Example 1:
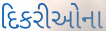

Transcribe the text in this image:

દિકરીઓના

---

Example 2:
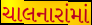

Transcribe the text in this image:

ચાલનારાંમાં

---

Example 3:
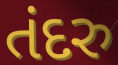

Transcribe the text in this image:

તંદરુ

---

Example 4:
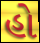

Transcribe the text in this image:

હો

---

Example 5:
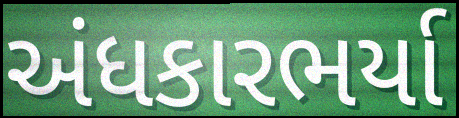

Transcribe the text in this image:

અંધકારભર્યા